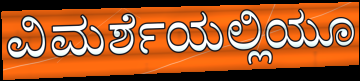
ವಿಮರ್ಶೆಯಲ್ಲಿಯೂ